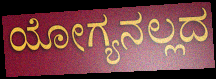
ಯೋಗ್ಯನಲ್ಲದ